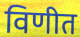
विणीत